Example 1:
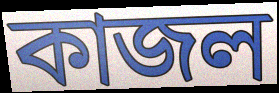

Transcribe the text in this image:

কাজল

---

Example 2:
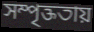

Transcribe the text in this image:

সম্পৃক্ততায়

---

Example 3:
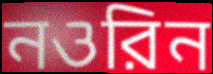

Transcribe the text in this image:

নওরিন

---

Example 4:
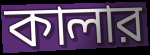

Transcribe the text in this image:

কালার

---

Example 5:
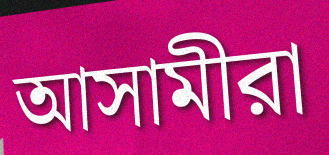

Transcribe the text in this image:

আসামীরা